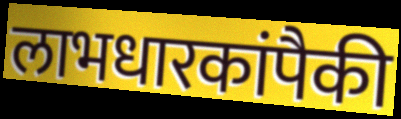
लाभधारकांपैकी